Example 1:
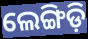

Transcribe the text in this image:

ଲେଙ୍ଗିଡ଼ି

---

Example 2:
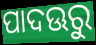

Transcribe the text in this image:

ପାଦଊରୁ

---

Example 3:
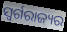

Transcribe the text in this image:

ସ୍ୱର୍ଗରାଜ୍ୟର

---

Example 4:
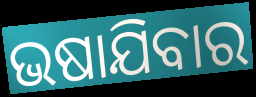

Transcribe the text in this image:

ଭଷାଯିବାର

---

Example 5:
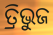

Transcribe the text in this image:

ତ୍ରିଭୁଜ